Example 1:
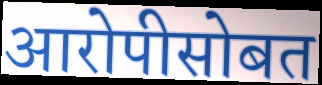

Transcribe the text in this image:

आरोपीसोबत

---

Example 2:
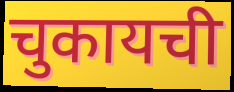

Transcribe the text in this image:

चुकायची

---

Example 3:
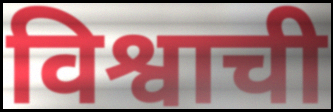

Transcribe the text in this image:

विश्वाची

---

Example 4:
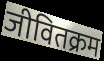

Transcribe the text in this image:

जीवितक्रम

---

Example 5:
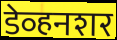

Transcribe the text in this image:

डेव्हनशर